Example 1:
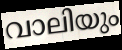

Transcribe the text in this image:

വാലിയും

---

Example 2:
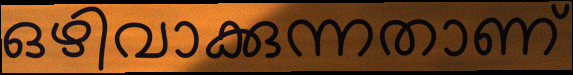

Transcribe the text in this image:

ഒഴിവാക്കുന്നതാണ്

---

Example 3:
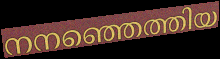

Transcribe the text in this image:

നനഞ്ഞെത്തിയ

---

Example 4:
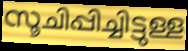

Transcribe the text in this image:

സൂചിപ്പിച്ചിട്ടുള്ള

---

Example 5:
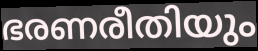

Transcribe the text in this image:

ഭരണരീതിയും